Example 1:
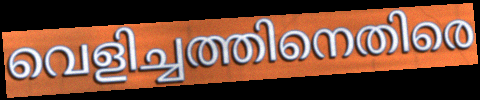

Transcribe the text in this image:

വെളിച്ചത്തിനെതിരെ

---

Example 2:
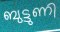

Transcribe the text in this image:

ബുട്ടുണി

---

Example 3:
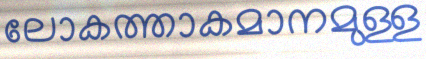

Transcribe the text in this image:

ലോകത്താകമാനമുള്ള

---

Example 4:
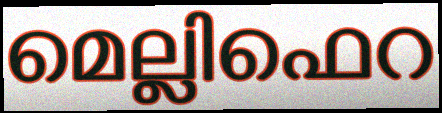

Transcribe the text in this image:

മെല്ലിഫെറ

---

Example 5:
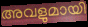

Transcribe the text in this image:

അവളുമായി